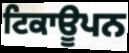
ਟਿਕਾਊਪਨ